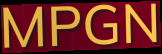
MPGN